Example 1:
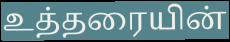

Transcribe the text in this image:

உத்தரையின்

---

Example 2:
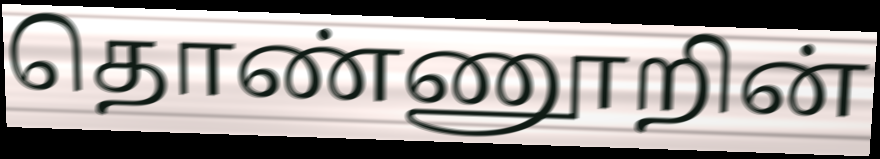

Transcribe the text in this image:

தொண்ணூறின்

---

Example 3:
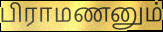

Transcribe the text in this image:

பிராமணனும்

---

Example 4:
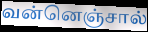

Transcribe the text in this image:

வன்னெஞ்சால்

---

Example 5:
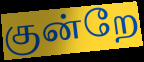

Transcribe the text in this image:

குன்றே